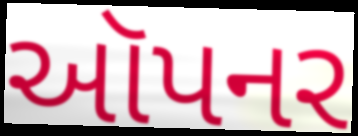
ઑપનર